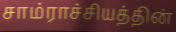
சாம்ராச்சியத்தின்